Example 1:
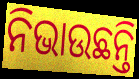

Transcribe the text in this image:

ନିଭାଉଛନ୍ତି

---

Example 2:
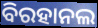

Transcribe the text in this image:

ବିରହାନଲ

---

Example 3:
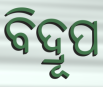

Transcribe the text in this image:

ବିଦ୍ରୂପ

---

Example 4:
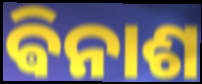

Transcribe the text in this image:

ଵିନାଶ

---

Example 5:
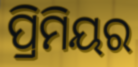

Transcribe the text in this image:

ପ୍ରିମିୟର